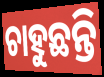
ଚାହୁଛନ୍ତି